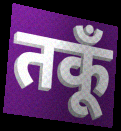
तकूँ